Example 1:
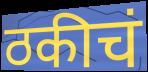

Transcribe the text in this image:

ठकीचं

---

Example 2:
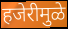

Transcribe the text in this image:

हजेरीमुळे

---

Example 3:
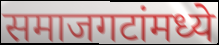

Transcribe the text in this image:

समाजगटांमध्ये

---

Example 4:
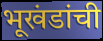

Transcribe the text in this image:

भूखंडांची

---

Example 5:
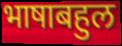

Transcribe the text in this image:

भाषाबहुल